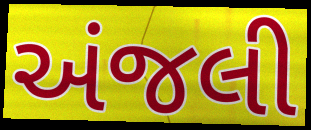
અંજલી